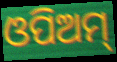
ଓପିଅମ୍